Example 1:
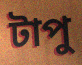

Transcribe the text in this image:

টাপু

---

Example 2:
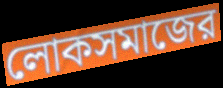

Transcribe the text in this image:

লোকসমাজের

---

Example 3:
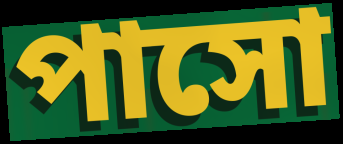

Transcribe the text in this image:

পাসো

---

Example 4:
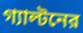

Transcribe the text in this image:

গ্যাল্টনের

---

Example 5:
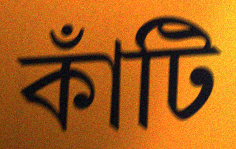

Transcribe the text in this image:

কাঁটি